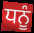
ਧਨੂੰ